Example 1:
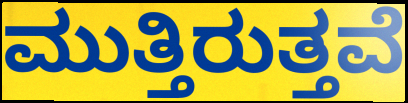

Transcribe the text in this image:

ಮುತ್ತಿರುತ್ತವೆ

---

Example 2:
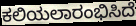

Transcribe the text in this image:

ಕಲಿಯಲಾರಂಭಿಸಿದೆ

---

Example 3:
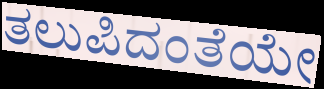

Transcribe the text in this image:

ತಲುಪಿದಂತೆಯೇ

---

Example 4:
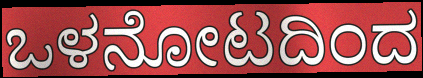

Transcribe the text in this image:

ಒಳನೋಟದಿಂದ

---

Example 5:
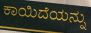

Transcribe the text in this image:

ಕಾಯಿದೆಯನ್ನು